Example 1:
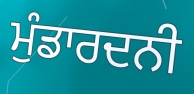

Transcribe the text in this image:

ਮੁੰਡਾਰਦਨੀ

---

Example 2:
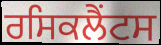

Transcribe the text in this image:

ਰਸਿਕਲੈਂਟਸ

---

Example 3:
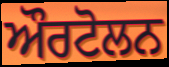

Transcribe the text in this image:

ਔਰਟੋਲਨ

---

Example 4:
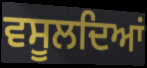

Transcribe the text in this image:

ਵਸੂਲਦਿਆਂ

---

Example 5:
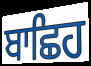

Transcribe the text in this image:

ਬਾਛਿਹ